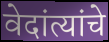
वेदांत्यांचे